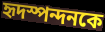
হৃদস্পন্দনকে